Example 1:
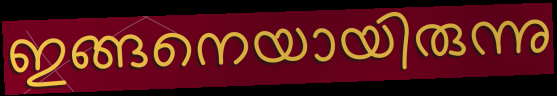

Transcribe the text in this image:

ഇങ്ങനെയായിരുന്നു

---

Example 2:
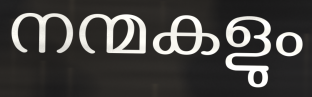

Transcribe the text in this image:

നന്മകളും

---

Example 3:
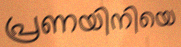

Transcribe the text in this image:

പ്രണയിനിയെ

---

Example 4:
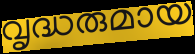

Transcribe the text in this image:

വൃദ്ധരുമായ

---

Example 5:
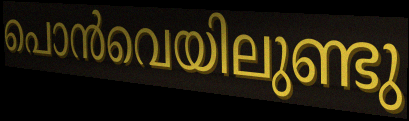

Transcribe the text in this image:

പൊൻവെയിലുണ്ടു